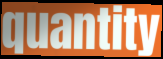
quantity